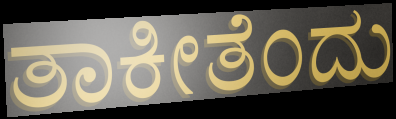
ತಾಕೀತೆಂದು